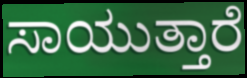
ಸಾಯುತ್ತಾರೆ